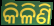
କିଳିଣି